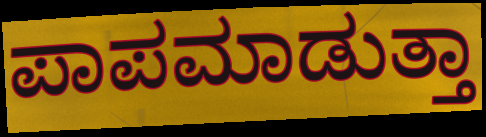
ಪಾಪಮಾಡುತ್ತಾ